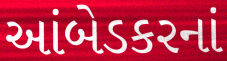
આંબેડકરનાં